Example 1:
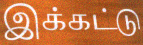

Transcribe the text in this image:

இக்கட்டு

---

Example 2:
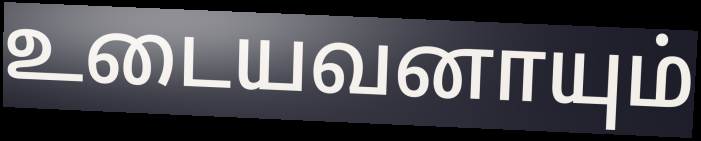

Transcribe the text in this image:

உடையவனாயும்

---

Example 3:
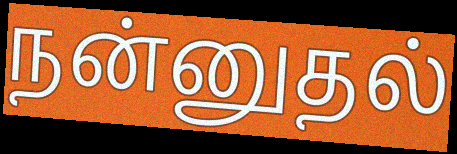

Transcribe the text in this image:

நன்னுதல்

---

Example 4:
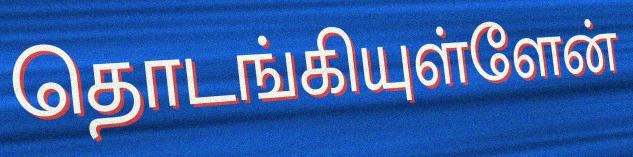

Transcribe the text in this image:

தொடங்கியுள்ளேன்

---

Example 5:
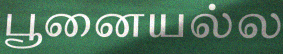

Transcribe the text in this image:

பூனையல்ல